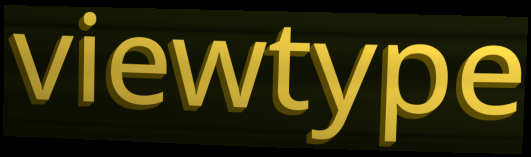
viewtype